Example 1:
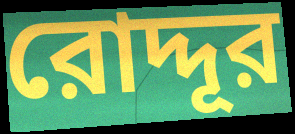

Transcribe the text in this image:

রোদ্দূর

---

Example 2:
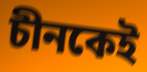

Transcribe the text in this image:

চীনকেই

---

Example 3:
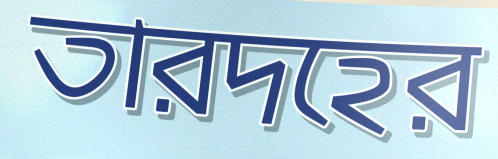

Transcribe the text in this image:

তারদহের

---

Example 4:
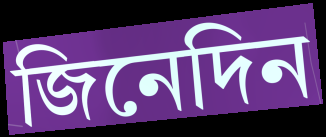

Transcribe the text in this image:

জিনেদিন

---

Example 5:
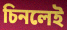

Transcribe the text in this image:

চিনলেই